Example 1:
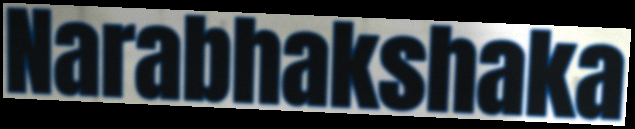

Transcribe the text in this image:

Narabhakshaka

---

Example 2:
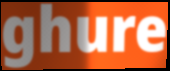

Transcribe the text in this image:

ghure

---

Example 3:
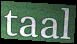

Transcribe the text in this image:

taal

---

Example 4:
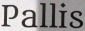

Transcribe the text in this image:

Pallis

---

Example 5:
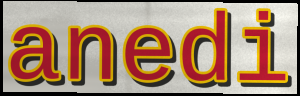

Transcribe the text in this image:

anedi